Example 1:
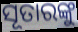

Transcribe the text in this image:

ସୂତାରଙ୍କୁ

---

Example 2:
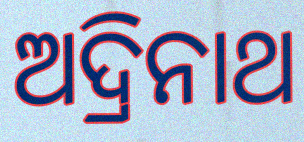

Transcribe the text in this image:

ଅଦ୍ରିନାଥ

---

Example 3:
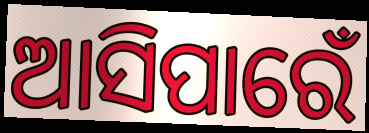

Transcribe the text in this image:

ଆସିପାରେଁ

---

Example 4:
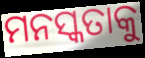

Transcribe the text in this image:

ମନସ୍କତାକୁ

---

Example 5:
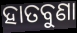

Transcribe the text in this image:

ହାତବୁଣା